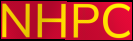
NHPC